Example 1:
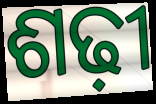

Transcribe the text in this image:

ଶଢ଼ୀ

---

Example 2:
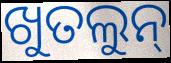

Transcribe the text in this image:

ଖୁତଲୁନ୍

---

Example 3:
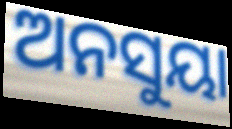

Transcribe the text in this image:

ଅନସୁୟା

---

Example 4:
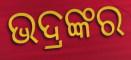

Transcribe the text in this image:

ଭଦ୍ରଙ୍କର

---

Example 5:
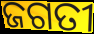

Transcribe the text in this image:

ଜଗତୀ